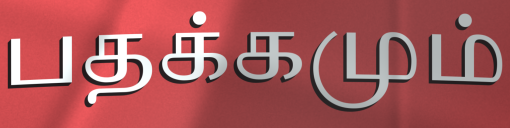
பதக்கமும்